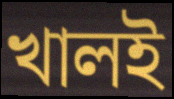
খালই